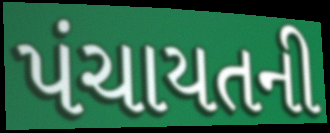
પંચાયતની